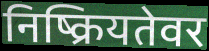
निष्क्रियतेवर